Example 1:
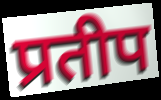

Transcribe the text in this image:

प्रतीप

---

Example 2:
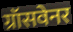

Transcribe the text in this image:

ग्रॉसवेनर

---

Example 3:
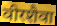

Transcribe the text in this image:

वीरशैवा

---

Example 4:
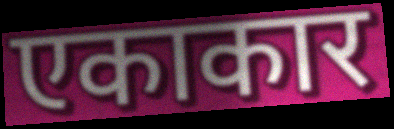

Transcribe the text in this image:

एकाकार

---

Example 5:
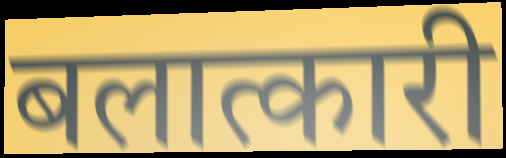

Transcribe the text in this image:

बलात्कारी